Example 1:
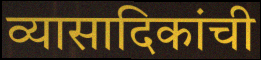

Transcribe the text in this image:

व्यासादिकांची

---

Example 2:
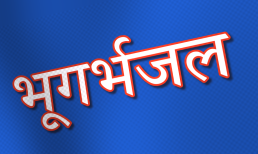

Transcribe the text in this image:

भूगर्भजल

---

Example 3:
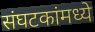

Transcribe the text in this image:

संघटकांमध्ये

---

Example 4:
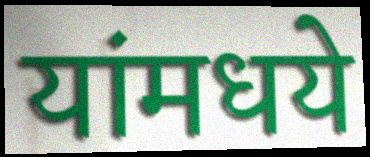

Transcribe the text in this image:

यांमधये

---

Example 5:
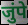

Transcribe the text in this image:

जुंपे